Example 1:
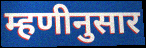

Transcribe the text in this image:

म्हणीनुसार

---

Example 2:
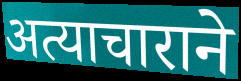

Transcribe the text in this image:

अत्याचाराने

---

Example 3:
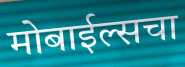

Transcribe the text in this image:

मोबाईल्सचा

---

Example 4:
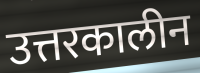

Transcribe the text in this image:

उत्तरकालीन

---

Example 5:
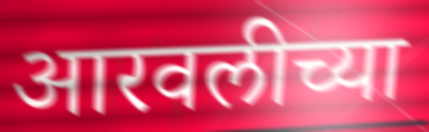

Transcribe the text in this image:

आरवलीच्या